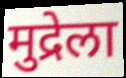
मुद्रेला